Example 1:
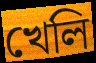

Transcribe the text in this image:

খেলি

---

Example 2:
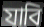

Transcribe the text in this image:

যাবি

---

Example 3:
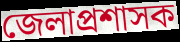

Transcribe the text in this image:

জেলাপ্রশাসক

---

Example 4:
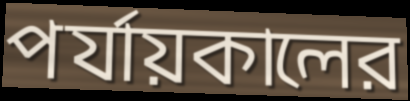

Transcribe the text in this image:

পর্যায়কালের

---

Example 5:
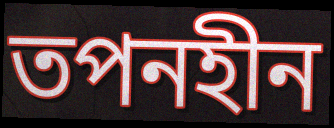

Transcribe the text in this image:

তপনহীন